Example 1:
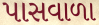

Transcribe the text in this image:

પાસવાળા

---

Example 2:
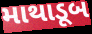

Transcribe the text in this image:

માથાડૂબ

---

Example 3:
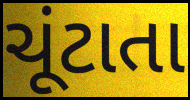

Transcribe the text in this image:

ચૂંટાતા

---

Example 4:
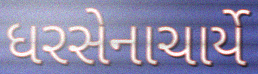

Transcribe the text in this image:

ધરસેનાચાર્યે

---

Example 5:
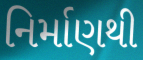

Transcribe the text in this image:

નિર્માણથી